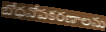
బోధనోపకరణాలను